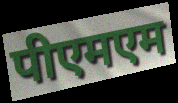
पीएमएम